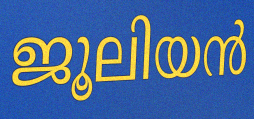
ജൂലിയൻ